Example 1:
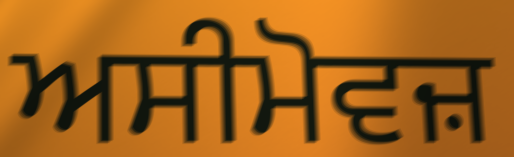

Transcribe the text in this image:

ਅਸੀਮੋਵਜ਼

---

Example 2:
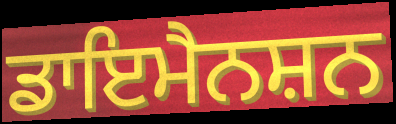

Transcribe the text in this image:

ਡਾਇਮੈਨਸ਼ਨ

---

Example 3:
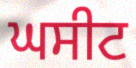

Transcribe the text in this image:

ਘਸੀਟ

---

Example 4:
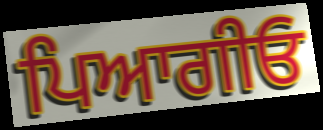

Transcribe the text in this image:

ਪਿਆਗੀਓ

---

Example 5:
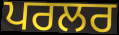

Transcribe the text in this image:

ਪਰਲਰ